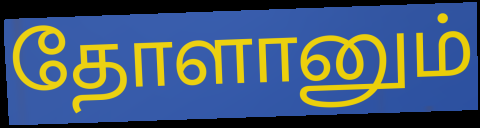
தோளானும்